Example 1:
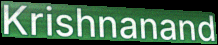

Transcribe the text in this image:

Krishnanand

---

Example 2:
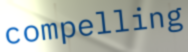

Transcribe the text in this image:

compelling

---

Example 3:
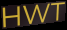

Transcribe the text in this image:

HWT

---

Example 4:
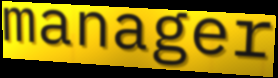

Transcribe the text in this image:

manager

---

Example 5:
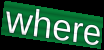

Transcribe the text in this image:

where